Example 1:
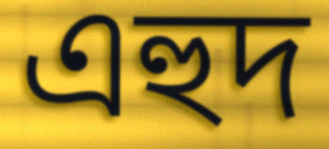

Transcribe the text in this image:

এহুদ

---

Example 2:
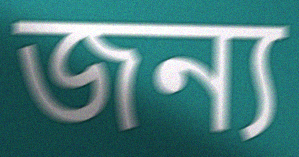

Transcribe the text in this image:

জন্য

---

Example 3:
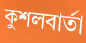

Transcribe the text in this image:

কুশলবার্তা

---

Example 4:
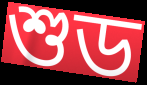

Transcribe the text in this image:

শুড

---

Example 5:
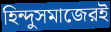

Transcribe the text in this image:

হিন্দুসমাজেরই